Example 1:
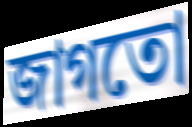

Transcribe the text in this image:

জাগতো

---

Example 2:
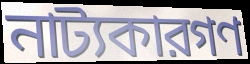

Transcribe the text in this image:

নাট্যকারগণ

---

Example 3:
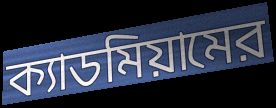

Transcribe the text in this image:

ক্যাডমিয়ামের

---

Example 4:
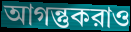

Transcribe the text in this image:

আগন্তুকরাও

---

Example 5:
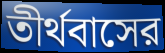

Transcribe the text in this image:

তীর্থবাসের